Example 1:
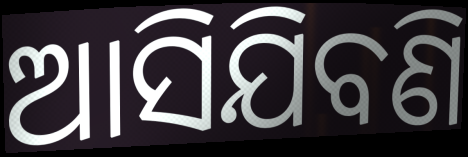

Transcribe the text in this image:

ଆସିଯିବଣି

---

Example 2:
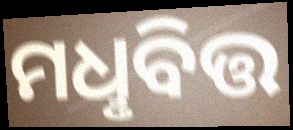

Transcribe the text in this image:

ମଧୢବିତ୍ତ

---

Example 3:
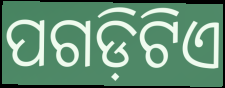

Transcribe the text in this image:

ପଗଡ଼ିଟିଏ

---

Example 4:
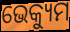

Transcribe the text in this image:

ଭେକ୍ୟୁମ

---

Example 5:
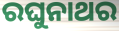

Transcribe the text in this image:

ରଘୁନାଥର